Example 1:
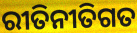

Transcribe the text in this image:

ରୀତିନୀତିଗତ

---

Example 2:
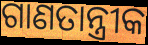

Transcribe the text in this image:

ଗାଣତାନ୍ତ୍ରୀକ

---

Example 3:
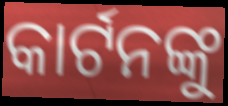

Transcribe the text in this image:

କାର୍ଟନଙ୍କୁ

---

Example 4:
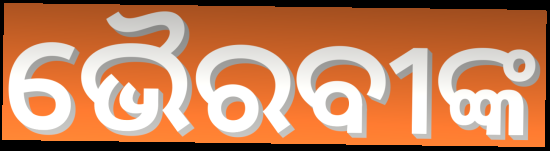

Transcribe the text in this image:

ଭୈରବୀଙ୍କ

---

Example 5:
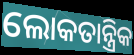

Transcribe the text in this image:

ଲୋକତାନ୍ତ୍ରିକ